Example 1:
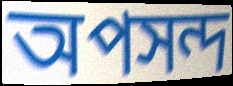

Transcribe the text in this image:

অপসন্দ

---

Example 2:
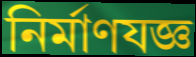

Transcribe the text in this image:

নির্মাণযজ্ঞ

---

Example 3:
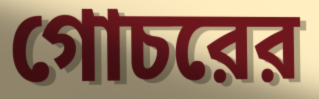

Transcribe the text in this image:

গোচরের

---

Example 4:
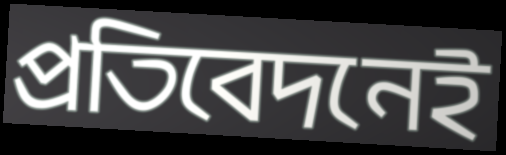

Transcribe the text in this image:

প্রতিবেদনেই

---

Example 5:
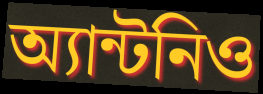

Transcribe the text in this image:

অ্যান্টনিও